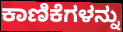
ಕಾಣಿಕೆಗಳನ್ನು